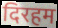
दिरहम